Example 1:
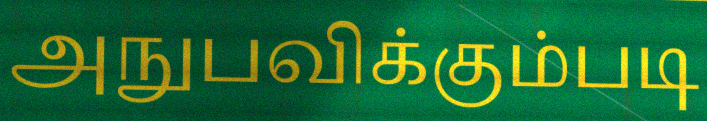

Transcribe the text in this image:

அநுபவிக்கும்படி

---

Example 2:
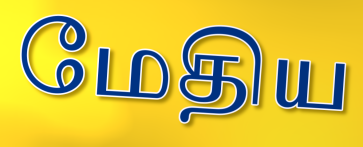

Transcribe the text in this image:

மேதிய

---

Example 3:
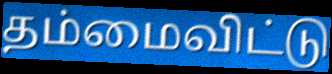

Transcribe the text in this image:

தம்மைவிட்டு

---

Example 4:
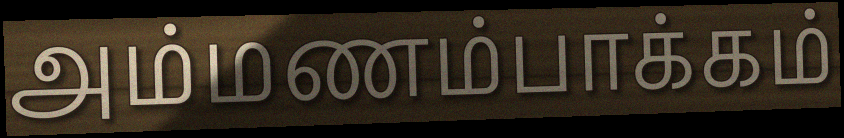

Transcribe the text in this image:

அம்மணம்பாக்கம்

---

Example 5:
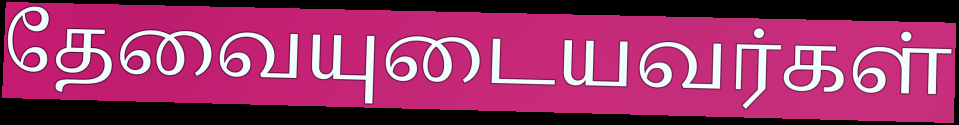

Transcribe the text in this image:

தேவையுடையவர்கள்